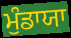
ਮੁੰਡਾਯਾ